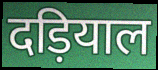
दड़ियाल